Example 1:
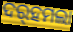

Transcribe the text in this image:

ଦର୍‌ହମଲା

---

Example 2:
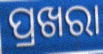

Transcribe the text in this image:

ପ୍ରଖରା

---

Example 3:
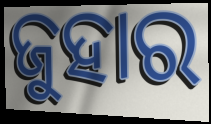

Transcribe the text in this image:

ଜୁହାର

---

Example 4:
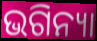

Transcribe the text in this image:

ଭଗିନ୍ୟା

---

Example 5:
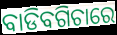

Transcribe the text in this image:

ବାଡିବଗିଚାରେ